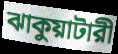
ঝাকুয়াটারী